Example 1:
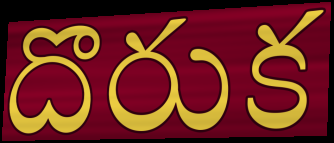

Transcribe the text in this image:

దొరుక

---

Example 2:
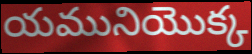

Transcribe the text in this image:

యమునియొక్క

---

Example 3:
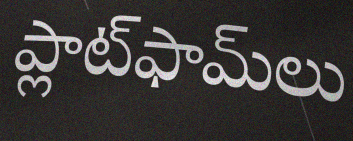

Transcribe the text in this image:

ప్లాట్‌ఫామ్‌లు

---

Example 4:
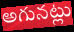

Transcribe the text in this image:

అగునట్లు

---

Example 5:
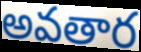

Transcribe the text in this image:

అవతార